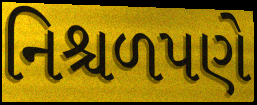
નિશ્ચળપણે